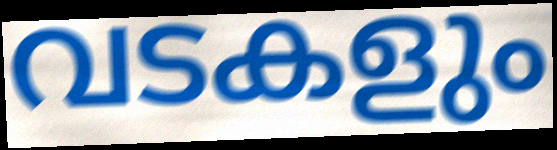
വടകളും